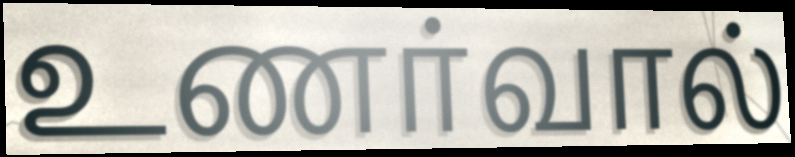
உணர்வால்